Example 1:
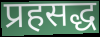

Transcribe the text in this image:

प्रहसद्ध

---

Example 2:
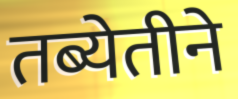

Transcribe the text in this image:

तब्येतीने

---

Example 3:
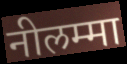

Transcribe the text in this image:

नीलम्मा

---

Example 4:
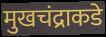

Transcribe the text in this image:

मुखचंद्राकडे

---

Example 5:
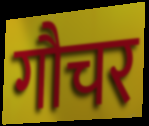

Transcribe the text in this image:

गौचर